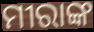
ମୀରାଙ୍କ